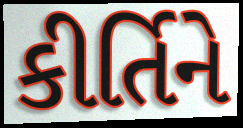
કીર્તિને